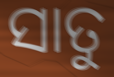
ସାତୁ